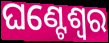
ଘଣ୍ଟେଶ୍ୱର